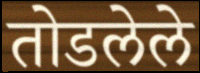
तोडलेले